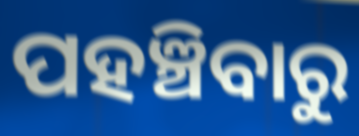
ପହଞ୍ଚିବାରୁ